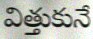
విత్తుకునే